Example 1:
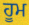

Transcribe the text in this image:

ਹੂਮ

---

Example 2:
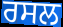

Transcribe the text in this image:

ਰਸਲ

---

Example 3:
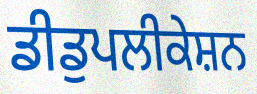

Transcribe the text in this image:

ਡੀਡੁਪਲੀਕੇਸ਼ਨ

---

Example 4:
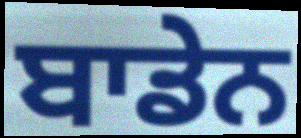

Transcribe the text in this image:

ਬਾਡੇਨ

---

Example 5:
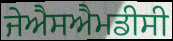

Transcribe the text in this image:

ਜੇਐਸਐਮਡੀਸੀ